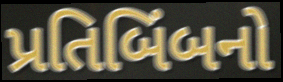
પ્રતિબિંબનો